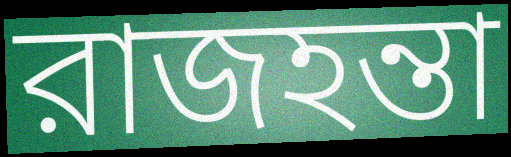
রাজহন্তা